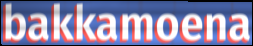
bakkamoena